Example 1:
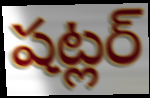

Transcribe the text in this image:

షట్లర్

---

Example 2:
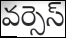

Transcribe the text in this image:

వర్సెస్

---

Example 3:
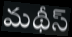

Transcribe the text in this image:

మథీస్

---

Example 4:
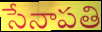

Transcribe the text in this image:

సేనాపతి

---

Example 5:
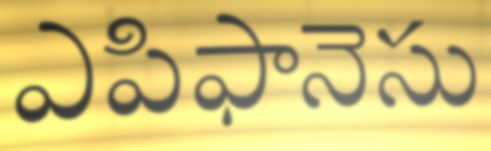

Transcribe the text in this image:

ఎపిఫానెసు